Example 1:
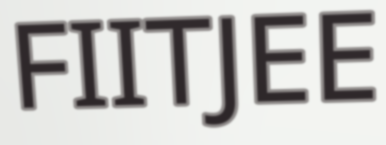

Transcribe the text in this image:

FIITJEE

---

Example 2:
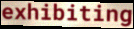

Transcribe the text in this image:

exhibiting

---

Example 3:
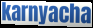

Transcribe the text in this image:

karnyacha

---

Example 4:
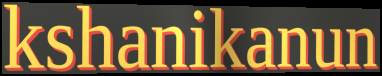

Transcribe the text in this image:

kshanikanun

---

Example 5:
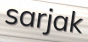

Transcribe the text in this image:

sarjak